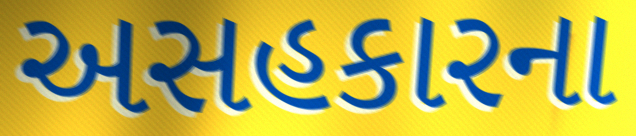
અસહકારના